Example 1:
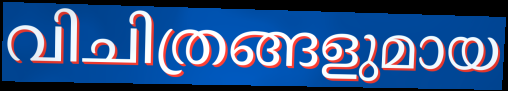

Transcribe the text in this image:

വിചിത്രങ്ങളുമായ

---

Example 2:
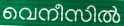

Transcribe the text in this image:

വെനീസിൽ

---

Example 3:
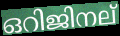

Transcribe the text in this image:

ഒറിജിനല്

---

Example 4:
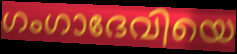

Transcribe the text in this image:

ഗംഗാദേവിയെ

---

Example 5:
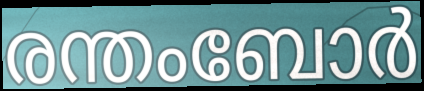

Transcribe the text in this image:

രന്തംബോർ